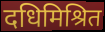
दधिमिश्रित